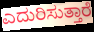
ಎದುರಿಸುತ್ತಾರೆ